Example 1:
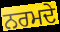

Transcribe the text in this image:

ਨਰਮਦੇ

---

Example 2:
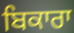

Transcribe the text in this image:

ਬਿਕਾਰਾ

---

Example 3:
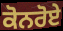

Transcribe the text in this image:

ਕੋਨਰੋਏ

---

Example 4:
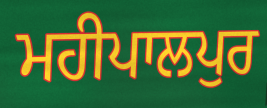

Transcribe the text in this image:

ਮਹੀਪਾਲਪੁਰ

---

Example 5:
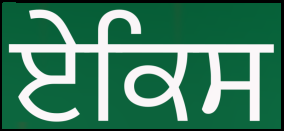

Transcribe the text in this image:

ਏਕਿਸ